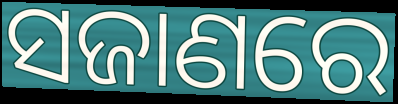
ସଜାଣରେ